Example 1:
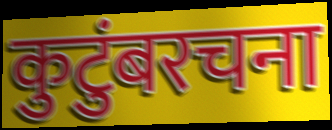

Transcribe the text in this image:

कुटुंबरचना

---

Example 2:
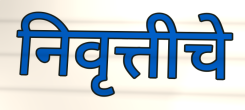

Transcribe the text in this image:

निवृत्तीचे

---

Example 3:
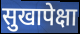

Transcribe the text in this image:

सुखापेक्षा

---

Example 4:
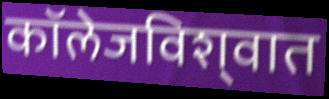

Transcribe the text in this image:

कॉलेजविश्वात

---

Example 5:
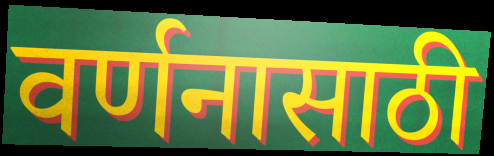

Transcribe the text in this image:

वर्णनासाठी